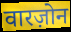
वारज़ोन